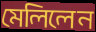
মেলিলেন